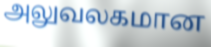
அலுவலகமான